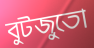
বুটজুতো